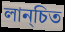
লান্চিত